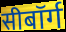
सीबॉर्ग